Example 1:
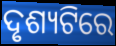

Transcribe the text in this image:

ଦୃଶ୍ୟଟିରେ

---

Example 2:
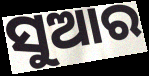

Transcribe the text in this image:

ସୁଆର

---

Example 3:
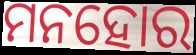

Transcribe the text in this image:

ମନହୋର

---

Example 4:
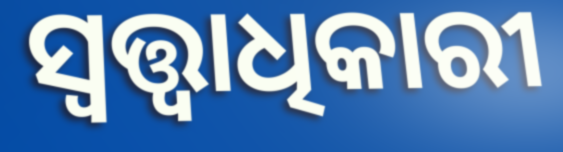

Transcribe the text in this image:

ସ୍ବତ୍ତ୍ବାଧିକାରୀ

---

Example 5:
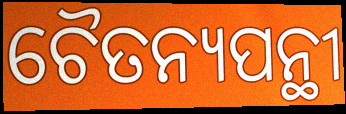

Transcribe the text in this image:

ଚୈତନ୍ୟପନ୍ଥୀ